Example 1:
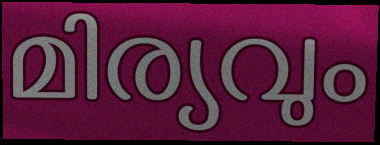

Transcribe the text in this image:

മിര്യവും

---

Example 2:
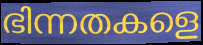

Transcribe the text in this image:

ഭിന്നതകളെ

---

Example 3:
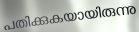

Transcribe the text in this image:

പതിക്കുകയായിരുന്നു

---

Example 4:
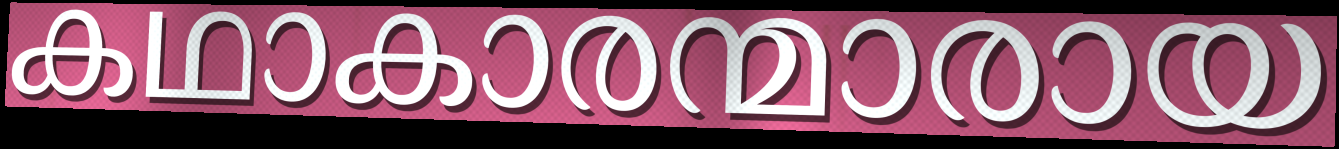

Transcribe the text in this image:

കഥാകാരന്മാരായ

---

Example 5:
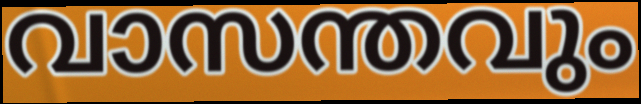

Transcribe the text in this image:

വാസന്തവും